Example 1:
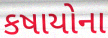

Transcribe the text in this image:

કષાયોના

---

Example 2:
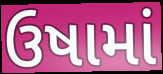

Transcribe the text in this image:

ઉષામાં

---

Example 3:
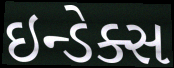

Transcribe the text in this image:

ઇન્ડેક્સ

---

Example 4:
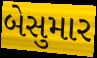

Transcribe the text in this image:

બેસુમાર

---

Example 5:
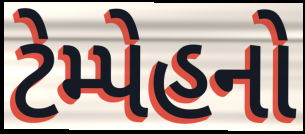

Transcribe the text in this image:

ટેમ્પેહનો